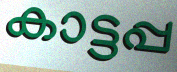
കാട്ടപ്പ